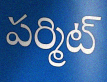
పర్మిట్